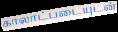
காலாட்படையுடன்